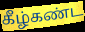
கீழ்கண்ட